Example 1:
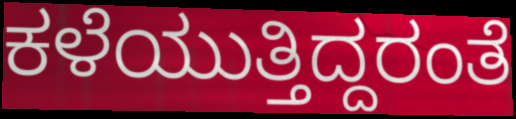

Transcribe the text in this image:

ಕಳೆಯುತ್ತಿದ್ದರಂತೆ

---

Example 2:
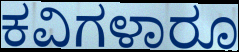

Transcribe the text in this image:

ಕವಿಗಳಾರೂ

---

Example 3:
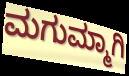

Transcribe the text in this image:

ಮಗುಮ್ಮಾಗಿ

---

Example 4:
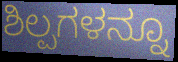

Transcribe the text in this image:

ಶಿಲ್ಪಗಳನ್ನೂ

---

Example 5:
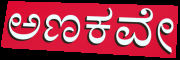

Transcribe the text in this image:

ಅಣಕವೇ